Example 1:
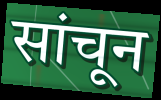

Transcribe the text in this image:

सांचून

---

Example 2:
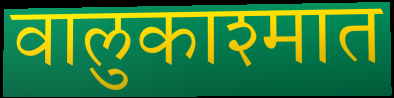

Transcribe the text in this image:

वालुकाश्मात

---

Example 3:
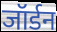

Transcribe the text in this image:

जॉर्डन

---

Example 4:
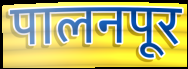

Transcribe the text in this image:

पालनपूर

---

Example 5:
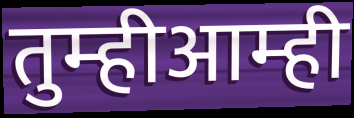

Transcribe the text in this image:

तुम्हीआम्ही